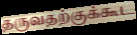
தருவதற்குக்கூட